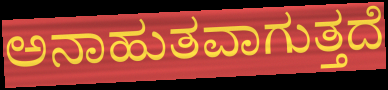
ಅನಾಹುತವಾಗುತ್ತದೆ